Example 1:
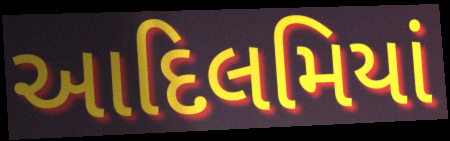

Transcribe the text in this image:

આદિલમિયાં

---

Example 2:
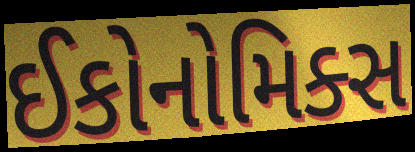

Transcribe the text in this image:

ઈકોનોમિક્સ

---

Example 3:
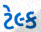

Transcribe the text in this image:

ટેલ્ક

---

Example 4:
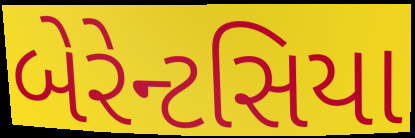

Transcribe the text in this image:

બેરેન્ટસિયા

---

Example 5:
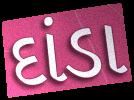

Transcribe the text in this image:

દાંડા